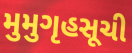
મુમુગૃહસૂચી